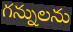
గన్నులను